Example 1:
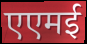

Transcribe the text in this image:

एएमई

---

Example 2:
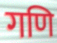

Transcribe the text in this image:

गणि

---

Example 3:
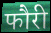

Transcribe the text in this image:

फौरी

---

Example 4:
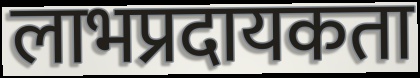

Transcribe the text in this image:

लाभप्रदायकता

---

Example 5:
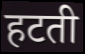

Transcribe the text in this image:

हटती